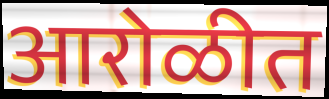
आरोळीत